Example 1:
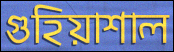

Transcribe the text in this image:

গুহিয়াশাল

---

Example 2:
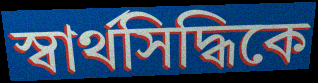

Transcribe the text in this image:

স্বার্থসিদ্ধিকে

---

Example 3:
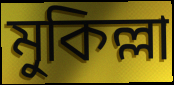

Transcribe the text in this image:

মুকিল্লা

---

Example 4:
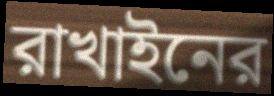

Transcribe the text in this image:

রাখাইনের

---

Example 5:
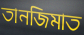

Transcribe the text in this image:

তানজিমাত